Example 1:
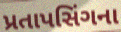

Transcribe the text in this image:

પ્રતાપસિંગના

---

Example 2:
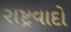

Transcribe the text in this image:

રાષ્ટ્રવાદો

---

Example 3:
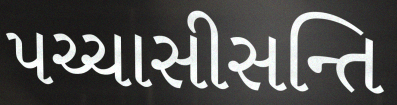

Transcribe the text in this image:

પચ્ચાસીસન્તિ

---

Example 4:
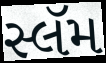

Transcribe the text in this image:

સ્લૅમ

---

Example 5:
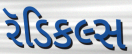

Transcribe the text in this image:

રૅડિકલ્સ